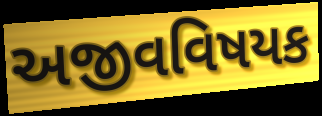
અજીવવિષયક